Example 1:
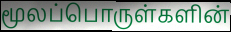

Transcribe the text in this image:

மூலப்பொருள்களின்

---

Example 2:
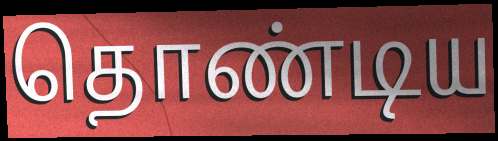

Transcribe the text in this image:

தொண்டிய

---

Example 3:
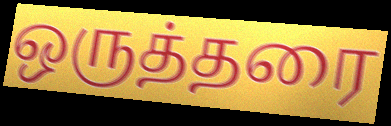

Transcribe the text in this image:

ஒருத்தரை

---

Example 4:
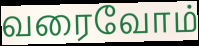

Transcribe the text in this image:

வரைவோம்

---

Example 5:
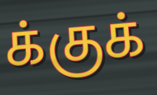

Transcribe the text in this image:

க்குக்